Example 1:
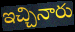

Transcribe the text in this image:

ఇచ్చినారు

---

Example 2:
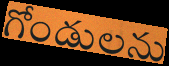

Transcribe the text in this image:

గోండులను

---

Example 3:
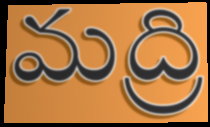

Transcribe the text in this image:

మద్రి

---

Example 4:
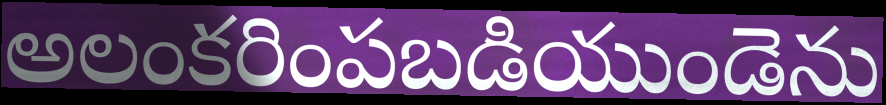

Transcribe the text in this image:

అలంకరింపబడియుండెను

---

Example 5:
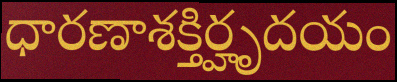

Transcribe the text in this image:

ధారణాశక్తిర్హృదయం